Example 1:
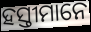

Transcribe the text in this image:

ହସ୍ତୀମାନେ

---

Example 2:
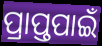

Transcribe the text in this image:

ପ୍ରାପ୍ତପାଇଁ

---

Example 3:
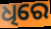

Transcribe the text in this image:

ଧିରେ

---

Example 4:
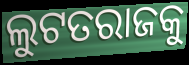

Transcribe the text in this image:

ଲୁଟତରାଜକୁ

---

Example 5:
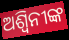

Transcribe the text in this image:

ଅଶ୍ୱିନୀଙ୍କ